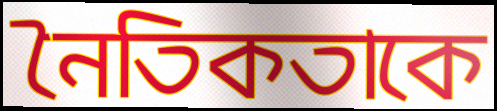
নৈতিকতাকে